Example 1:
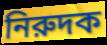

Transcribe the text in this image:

নিরুদক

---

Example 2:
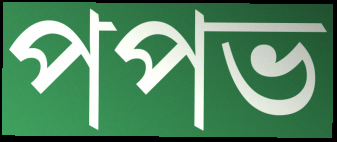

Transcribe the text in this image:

পপভ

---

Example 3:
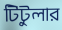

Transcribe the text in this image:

টিটুলার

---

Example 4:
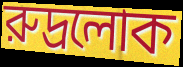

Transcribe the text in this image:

রুদ্রলোক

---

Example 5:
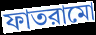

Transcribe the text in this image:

ফাতরামো